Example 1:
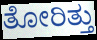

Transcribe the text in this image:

ತೋರಿತ್ತು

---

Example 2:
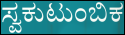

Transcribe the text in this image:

ಸ್ವಕುಟುಂಬಿಕ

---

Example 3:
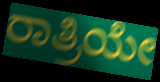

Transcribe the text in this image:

ರಾತ್ರಿಯೇ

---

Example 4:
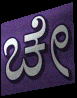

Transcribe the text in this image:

ಚೇ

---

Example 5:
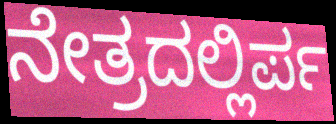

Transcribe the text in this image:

ನೇತ್ರದಲ್ಲಿರ್ಪ